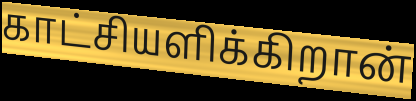
காட்சியளிக்கிறான்